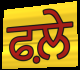
ਫਲ਼ੇ